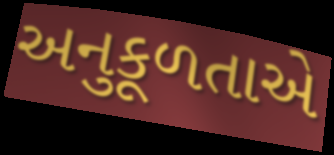
અનુકૂળતાએ